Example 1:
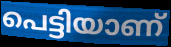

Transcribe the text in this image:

പെട്ടിയാണ്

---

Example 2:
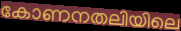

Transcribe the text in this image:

കോണനതലിയിലെ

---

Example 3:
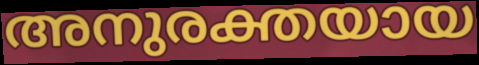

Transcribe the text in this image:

അനുരക്തയായ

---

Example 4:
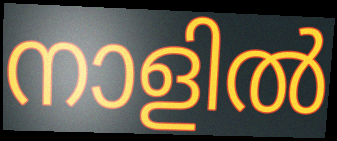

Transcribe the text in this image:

നാളിൽ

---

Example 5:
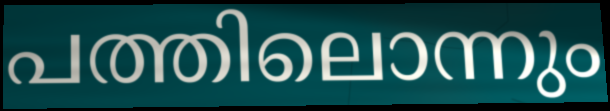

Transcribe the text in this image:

പത്തിലൊന്നും